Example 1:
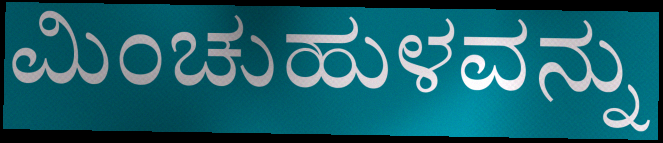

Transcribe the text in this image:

ಮಿಂಚುಹುಳವನ್ನು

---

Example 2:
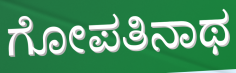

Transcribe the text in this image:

ಗೋಪತಿನಾಥ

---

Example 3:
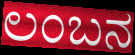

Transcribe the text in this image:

ಲಂಬನ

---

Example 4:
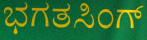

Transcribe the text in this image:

ಭಗತಸಿಂಗ್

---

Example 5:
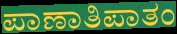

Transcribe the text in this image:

ಪಾಣಾತಿಪಾತಂ